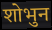
शोभुन